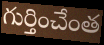
గుర్తించేంత